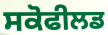
ਸਕੋਫੀਲਡ